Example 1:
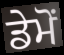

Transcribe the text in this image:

ਡੇਮੋਂ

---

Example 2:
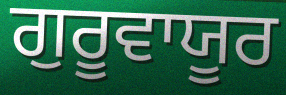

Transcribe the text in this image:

ਗੁਰੂਵਾਯੂਰ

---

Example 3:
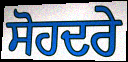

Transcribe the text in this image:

ਸੋਹਦਰੇ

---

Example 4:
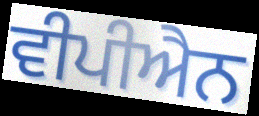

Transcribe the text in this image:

ਵੀਪੀਐਨ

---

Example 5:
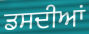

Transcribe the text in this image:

ਡਸਦੀਆਂ